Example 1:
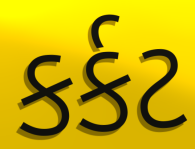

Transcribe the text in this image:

કર્કટ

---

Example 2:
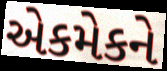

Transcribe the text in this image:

એકમેકને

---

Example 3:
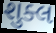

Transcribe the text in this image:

શુક્લ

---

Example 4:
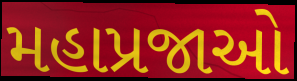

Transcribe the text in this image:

મહાપ્રજાઓ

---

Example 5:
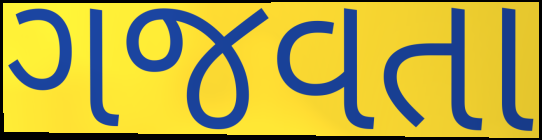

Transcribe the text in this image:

ગજવતા